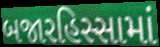
બજારહિસ્સામાં